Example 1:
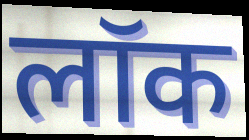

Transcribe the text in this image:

लॉक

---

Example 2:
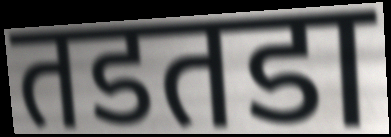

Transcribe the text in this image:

तडतडा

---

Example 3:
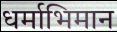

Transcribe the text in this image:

धर्माभिमान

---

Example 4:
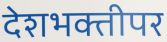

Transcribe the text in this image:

देशभक्तीपर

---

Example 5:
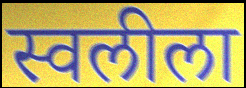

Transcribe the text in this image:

स्वलीला